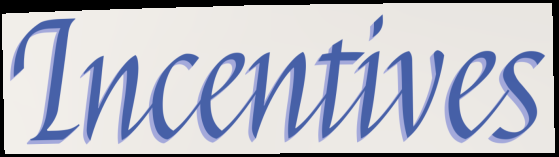
Incentives